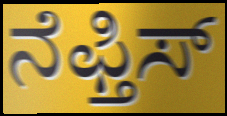
ನೆಫ್ತಿಸ್